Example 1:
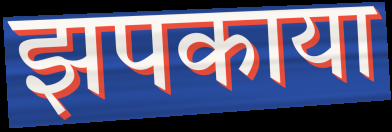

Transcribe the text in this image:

झपकाया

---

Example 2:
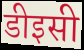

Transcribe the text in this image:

डीइसी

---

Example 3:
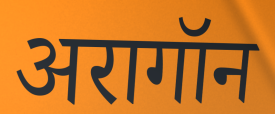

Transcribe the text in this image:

अरागॉन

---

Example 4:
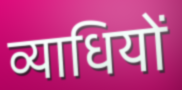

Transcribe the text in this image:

व्याधियों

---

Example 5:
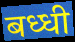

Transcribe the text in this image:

बध्धी